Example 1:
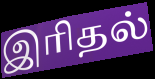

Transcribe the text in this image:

இரிதல்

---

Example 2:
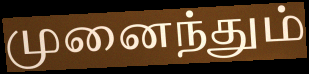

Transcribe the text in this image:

முனைந்தும்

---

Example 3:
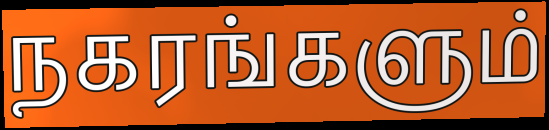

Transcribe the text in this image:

நகரங்களும்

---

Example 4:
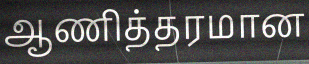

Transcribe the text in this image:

ஆணித்தரமான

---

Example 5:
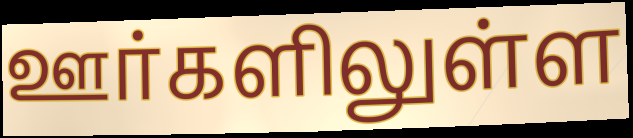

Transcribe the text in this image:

ஊர்களிலுள்ள